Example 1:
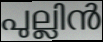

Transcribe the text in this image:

പുല്ലിൻ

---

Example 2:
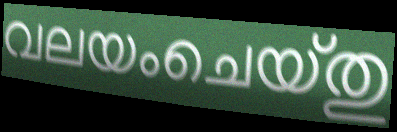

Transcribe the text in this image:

വലയംചെയ്തു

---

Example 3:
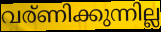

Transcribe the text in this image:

വര്ണിക്കുന്നില്ല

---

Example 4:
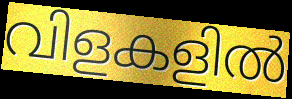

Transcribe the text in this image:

വിളകളിൽ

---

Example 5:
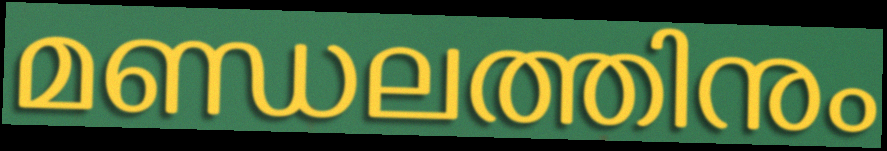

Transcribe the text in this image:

മണ്ഡലത്തിനും